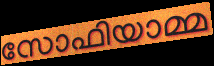
സോഫിയാമ്മ